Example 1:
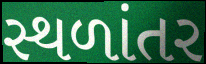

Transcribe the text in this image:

સ્થળાંતર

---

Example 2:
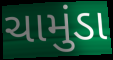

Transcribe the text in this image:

ચામુંડા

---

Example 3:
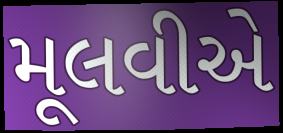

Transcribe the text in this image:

મૂલવીએ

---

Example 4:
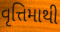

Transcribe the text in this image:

વૃત્તિમાથી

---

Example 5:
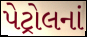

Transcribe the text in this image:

પેટ્રોલનાં